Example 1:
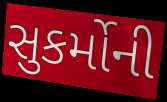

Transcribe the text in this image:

સુકર્મોની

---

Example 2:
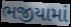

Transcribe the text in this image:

ભજીયામાં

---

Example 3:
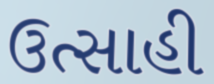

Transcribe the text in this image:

ઉત્સાહી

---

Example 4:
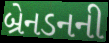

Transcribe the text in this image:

બ્રેનડનની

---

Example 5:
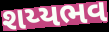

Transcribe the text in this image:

શય્યભવ